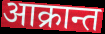
आक्रान्त